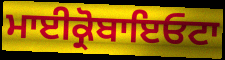
ਮਾਈਕ੍ਰੋਬਾਇਓਟਾ